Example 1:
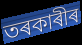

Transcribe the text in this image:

তৰকাৰীৰ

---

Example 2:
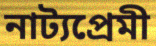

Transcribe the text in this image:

নাট্যপ্ৰেমী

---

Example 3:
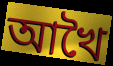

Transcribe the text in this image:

আখৈ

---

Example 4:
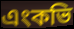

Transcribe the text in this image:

এংকভি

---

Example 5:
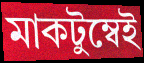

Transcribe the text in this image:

মাকটুম্বেই